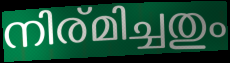
നിര്മിച്ചതും